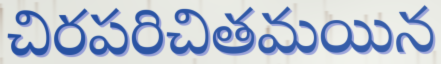
చిరపరిచితమయిన